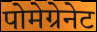
पोमेग्रेनेट